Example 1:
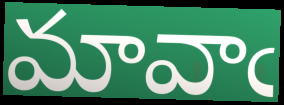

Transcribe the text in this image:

మావాఁ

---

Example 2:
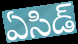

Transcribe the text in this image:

ఏసిడ్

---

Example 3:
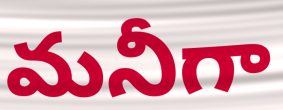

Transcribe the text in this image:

మనీగా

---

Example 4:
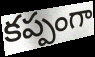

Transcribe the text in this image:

కప్పంగా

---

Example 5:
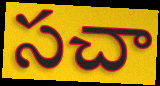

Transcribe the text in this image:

సచా